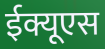
ईक्यूएस